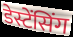
डेस्टेंसिंग